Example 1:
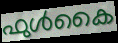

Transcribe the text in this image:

ഫുൾകൈ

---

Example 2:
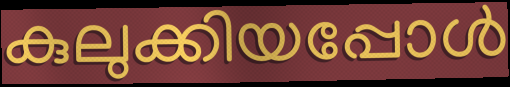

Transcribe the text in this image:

കുലുക്കിയപ്പോൾ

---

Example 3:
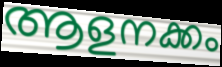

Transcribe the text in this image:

ആളനക്കം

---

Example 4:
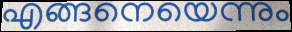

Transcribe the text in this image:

എങ്ങനെയെന്നും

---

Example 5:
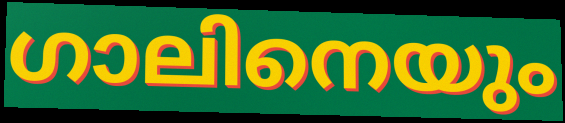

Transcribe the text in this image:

ഗാലിനെയും